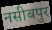
नसीबपुर